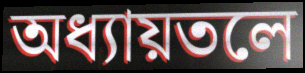
অধ্যায়তলে